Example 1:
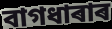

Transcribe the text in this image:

বাগধাৰাৰ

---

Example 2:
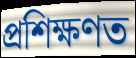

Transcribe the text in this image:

প্ৰশিক্ষণত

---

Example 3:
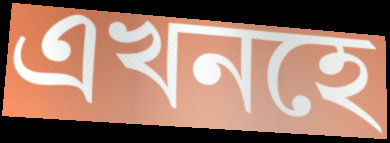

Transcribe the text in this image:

এখনহে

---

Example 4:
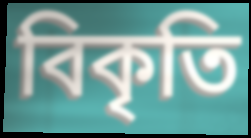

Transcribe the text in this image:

বিকৃতি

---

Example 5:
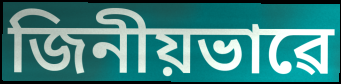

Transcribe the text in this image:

জিনীয়ভাৱে